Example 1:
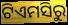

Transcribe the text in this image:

ଟିଏମସିରୁ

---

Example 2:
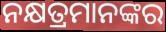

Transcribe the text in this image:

ନକ୍ଷତ୍ରମାନଙ୍କର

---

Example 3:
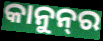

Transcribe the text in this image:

କାନୁନ୍‌ର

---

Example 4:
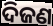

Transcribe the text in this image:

ଦିଜଣ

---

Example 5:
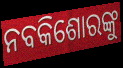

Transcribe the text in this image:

ନବକିଶୋରଙ୍କୁ